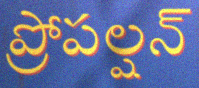
ప్రోపల్షన్